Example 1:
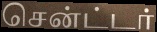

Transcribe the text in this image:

சென்ட்டர்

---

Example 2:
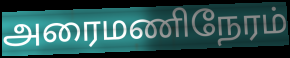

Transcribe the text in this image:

அரைமணிநேரம்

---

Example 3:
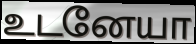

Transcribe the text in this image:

உடனேயா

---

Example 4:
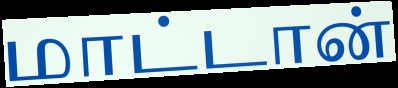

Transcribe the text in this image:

மாட்டான்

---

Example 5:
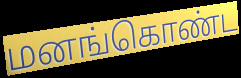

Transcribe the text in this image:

மனங்கொண்ட